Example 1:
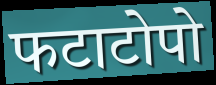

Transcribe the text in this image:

फटाटोपो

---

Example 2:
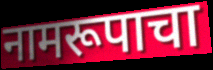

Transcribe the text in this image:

नामरूपाचा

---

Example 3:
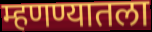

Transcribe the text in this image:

म्हणण्यातला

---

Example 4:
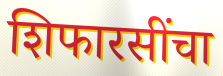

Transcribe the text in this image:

शिफारसींचा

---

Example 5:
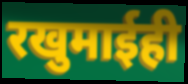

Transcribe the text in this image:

रखुमाईही